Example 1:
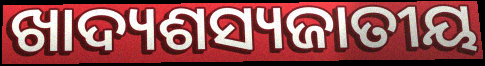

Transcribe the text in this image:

ଖାଦ୍ୟଶସ୍ୟଜାତୀୟ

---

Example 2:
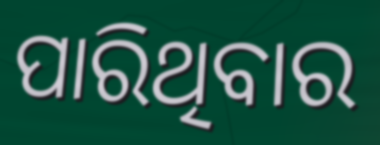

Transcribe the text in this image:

ପାରିଥିବାର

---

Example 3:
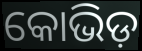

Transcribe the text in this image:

କୋଭିଡ଼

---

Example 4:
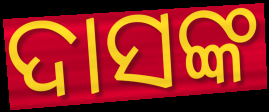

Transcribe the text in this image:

ଦାସଙ୍କ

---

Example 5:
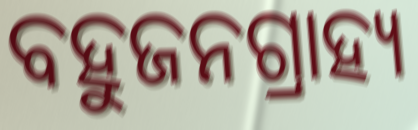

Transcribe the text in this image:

ବହୁଜନଗ୍ରାହ୍ୟ